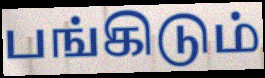
பங்கிடும்